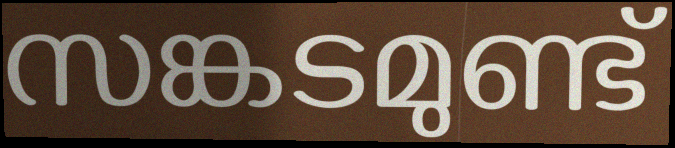
സങ്കടമുണ്ട്